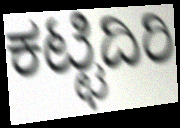
ಕಟ್ಟಿದಿರಿ